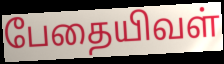
பேதையிவள்